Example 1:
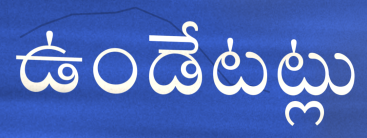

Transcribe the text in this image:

ఉండేటట్లు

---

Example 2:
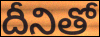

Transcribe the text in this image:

దీనితో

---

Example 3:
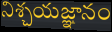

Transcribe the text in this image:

నిశ్చయజ్ఞానం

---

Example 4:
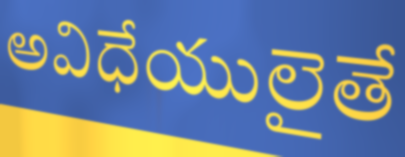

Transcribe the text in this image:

అవిధేయులైతే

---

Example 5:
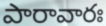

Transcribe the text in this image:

పారావారః